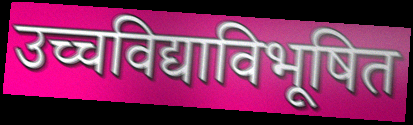
उच्चविद्याविभूषित